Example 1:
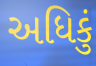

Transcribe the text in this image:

અધિકું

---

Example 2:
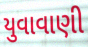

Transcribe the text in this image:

યુવાવાણી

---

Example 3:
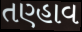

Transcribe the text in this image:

તણ્હાવ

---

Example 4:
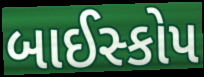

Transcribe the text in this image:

બાઈસ્કોપ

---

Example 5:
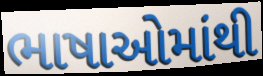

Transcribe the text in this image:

ભાષાઓમાંથી